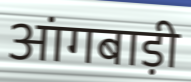
आंगबाड़ी